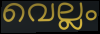
വെല്ലം